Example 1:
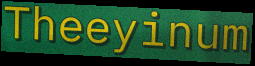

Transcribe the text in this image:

Theeyinum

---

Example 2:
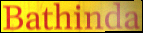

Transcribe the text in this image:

Bathinda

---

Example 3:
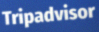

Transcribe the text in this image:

Tripadvisor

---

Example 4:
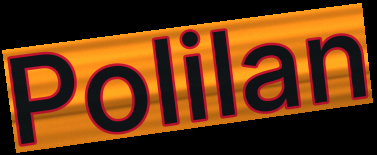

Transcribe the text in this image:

Polilan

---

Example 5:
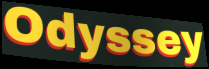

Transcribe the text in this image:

Odyssey